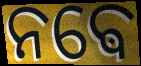
ନଵେ